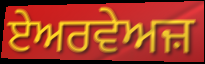
ਏਅਰਵੇਅਜ਼